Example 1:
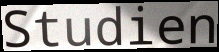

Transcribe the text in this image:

Studien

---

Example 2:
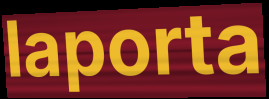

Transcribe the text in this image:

laporta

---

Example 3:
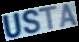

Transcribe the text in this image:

USTA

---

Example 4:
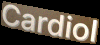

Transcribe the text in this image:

Cardiol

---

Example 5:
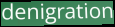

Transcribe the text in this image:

denigration